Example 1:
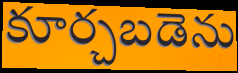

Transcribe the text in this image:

కూర్చబడెను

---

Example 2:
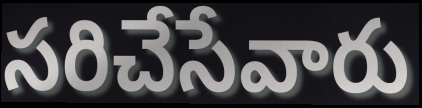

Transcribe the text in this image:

సరిచేసేవారు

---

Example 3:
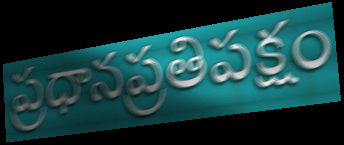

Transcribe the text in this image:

ప్రధానప్రతిపక్షం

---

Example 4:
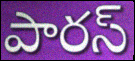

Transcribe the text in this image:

పారస్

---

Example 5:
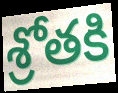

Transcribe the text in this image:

శ్రోతకి